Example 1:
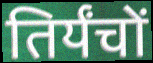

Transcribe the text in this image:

तिर्यंचों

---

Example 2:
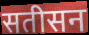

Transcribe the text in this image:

सतीसन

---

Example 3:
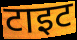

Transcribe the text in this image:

टाइट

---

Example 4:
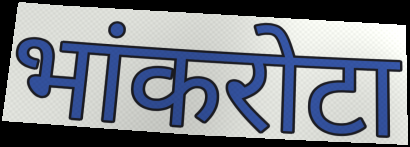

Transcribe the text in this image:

भांकरोटा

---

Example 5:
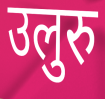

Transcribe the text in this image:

उलुरु